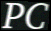
PC